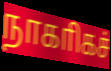
நாகரிகச்